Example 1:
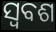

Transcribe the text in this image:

ସ୍ଵବଶ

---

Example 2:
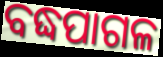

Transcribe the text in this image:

ବଦ୍ଧପାଗଳ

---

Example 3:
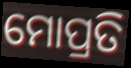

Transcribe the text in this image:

ମୋପ୍ରତି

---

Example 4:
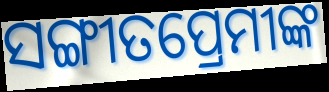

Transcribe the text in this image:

ସଙ୍ଗୀତପ୍ରେମୀଙ୍କ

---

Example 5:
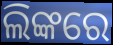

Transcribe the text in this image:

ଲିଙ୍କରେ